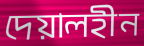
দেয়ালহীন